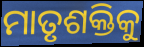
ମାତୃଶକ୍ତିକୁ